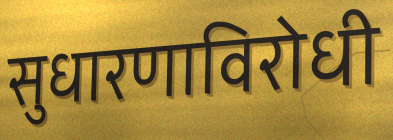
सुधारणाविरोधी